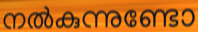
നൽകുന്നുണ്ടോ